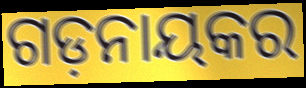
ଗଡ଼ନାୟକର